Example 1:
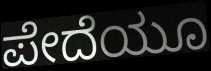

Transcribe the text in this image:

ಪೇದೆಯೂ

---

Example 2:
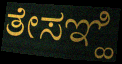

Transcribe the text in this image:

ತೇಸಞ್ಹಿ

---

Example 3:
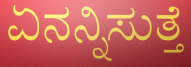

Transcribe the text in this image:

ಏನನ್ನಿಸುತ್ತೆ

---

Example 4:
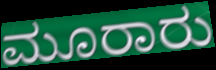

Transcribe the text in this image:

ಮೂರಾರು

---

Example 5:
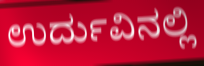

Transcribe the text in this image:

ಉರ್ದುವಿನಲ್ಲಿ